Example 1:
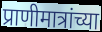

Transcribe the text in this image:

प्राणीमात्रांच्या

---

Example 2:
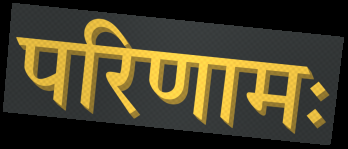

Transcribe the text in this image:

परिणामः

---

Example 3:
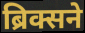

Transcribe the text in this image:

ब्रिक्सने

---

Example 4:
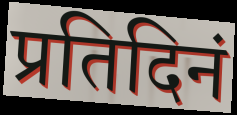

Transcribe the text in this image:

प्रतिदिनं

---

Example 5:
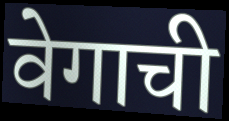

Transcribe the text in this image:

वेगाची